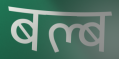
बल्‍ब